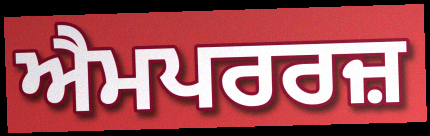
ਐਮਪਰਰਜ਼